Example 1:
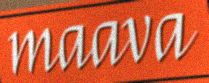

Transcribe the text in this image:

maava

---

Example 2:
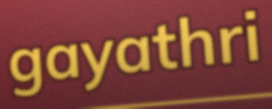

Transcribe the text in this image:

gayathri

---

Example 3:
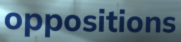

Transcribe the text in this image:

oppositions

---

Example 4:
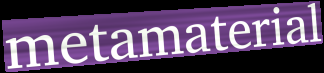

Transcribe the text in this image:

metamaterial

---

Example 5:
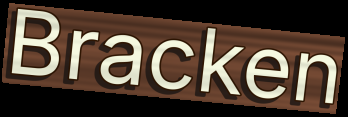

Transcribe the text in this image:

Bracken